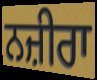
ਨਜ਼ੀਰਾ